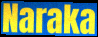
Naraka